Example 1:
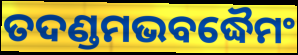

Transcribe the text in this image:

ତଦଣ୍ଡମଭବଦ୍ଧୈମଂ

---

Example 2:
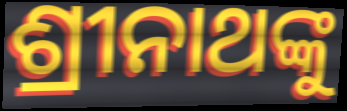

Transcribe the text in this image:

ଶ୍ରୀନାଥଙ୍କୁ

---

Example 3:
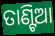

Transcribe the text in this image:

ତାଣ୍ଟିଆ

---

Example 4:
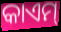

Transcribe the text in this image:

କାଏମ୍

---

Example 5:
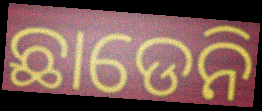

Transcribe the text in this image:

ଛାଡେନି